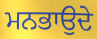
ਮਨਭਾਉਦੇ